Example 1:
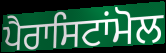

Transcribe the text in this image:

ਪੈਰਾਸਿਟਾਂਮੋਲ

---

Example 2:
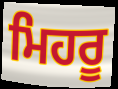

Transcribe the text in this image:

ਮਿਹਰੂ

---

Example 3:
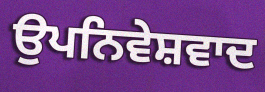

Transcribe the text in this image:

ਉਪਨਿਵੇਸ਼ਵਾਦ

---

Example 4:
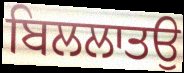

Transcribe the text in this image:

ਬਿਲਲਾਤਉ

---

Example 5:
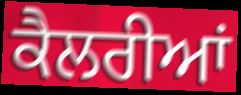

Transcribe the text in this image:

ਕੈਲਰੀਆਂ